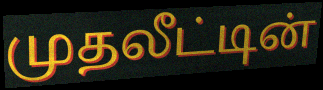
முதலீட்டின்